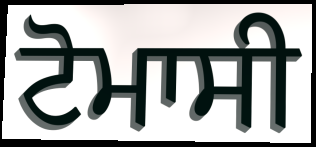
ਟੋਮਾਸੀ